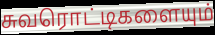
சுவரொட்டிகளையும்